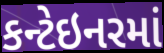
કન્ટેઇનરમાં